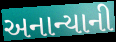
અનાન્યાની